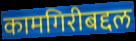
कामगिरीबद्दल